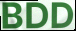
BDD